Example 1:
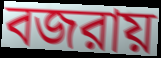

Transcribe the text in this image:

বজরায়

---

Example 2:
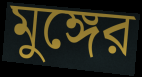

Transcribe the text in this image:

মুঙ্গের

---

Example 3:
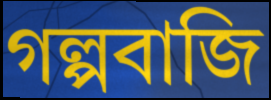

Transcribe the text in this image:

গল্পবাজি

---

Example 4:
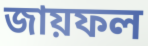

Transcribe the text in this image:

জায়ফল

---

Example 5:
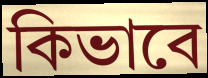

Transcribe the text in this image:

কিভাবে